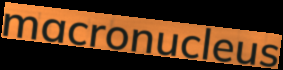
macronucleus